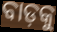
ବାଡ଼କୁ